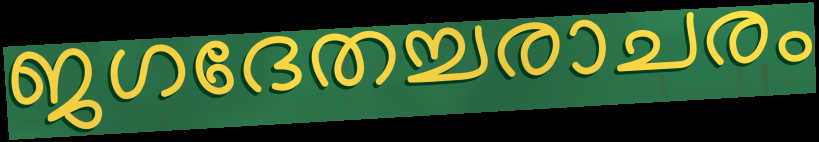
ജഗദേതച്ചരാചരം